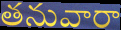
తనువారా